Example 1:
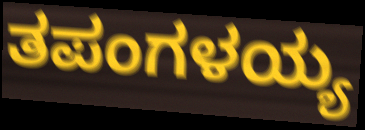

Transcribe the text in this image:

ತಪಂಗಳಯ್ಯ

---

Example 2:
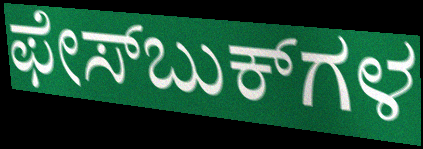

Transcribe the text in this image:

ಫೇಸ್‌ಬುಕ್‌ಗಳ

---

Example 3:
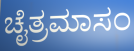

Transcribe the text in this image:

ಚೈತ್ರಮಾಸಂ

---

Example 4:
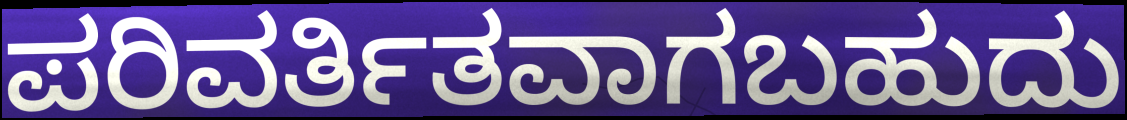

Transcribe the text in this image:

ಪರಿವರ್ತಿತವಾಗಬಹುದು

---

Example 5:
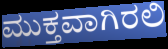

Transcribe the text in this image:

ಮುಕ್ತವಾಗಿರಲಿ